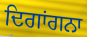
ਦਿਗਾਂਗਨਾ